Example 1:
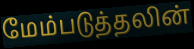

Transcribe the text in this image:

மேம்படுத்தலின்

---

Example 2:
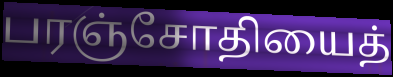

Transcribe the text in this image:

பரஞ்சோதியைத்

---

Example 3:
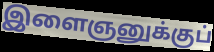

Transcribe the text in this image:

இளைஞனுக்குப்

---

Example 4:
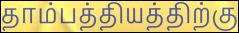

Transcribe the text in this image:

தாம்பத்தியத்திற்கு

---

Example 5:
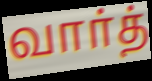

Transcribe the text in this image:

வார்த்